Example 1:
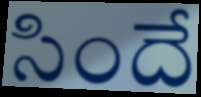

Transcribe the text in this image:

సిందే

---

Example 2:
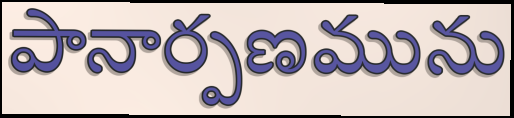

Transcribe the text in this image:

పానార్పణమును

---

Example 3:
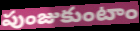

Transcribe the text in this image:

పుంజుకుంటాం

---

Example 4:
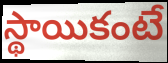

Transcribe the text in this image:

స్థాయికంటే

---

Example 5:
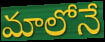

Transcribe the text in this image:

మాలోనే